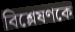
বিশ্লেষণকে